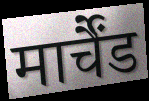
मार्चैंड